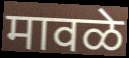
मावळे